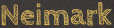
Neimark